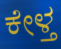
ಕೇಳ್ತ